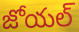
జోయల్